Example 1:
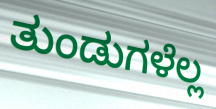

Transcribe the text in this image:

ತುಂಡುಗಳೆಲ್ಲ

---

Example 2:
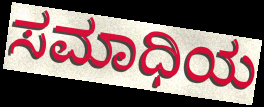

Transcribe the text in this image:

ಸಮಾಧಿಯ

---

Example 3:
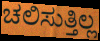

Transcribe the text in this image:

ಚಲಿಸುತ್ತಿಲ್ಲ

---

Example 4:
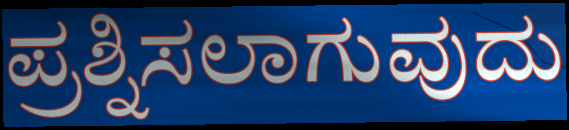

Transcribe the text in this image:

ಪ್ರಶ್ನಿಸಲಾಗುವುದು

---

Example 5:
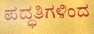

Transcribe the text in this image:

ಪದ್ಧತಿಗಳಿಂದ